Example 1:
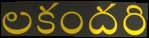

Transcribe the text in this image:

లకందరి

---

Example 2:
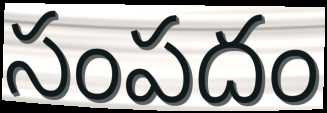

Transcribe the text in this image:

సంపదం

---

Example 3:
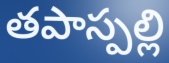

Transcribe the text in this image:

తపాస్పల్లి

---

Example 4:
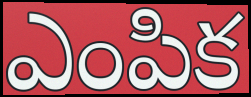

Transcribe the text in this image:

ఎంపిక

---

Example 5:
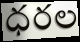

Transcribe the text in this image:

ధరల